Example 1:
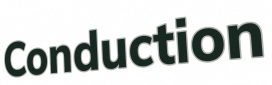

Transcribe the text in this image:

Conduction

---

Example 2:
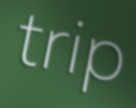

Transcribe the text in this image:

trip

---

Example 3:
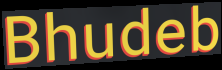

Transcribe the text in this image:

Bhudeb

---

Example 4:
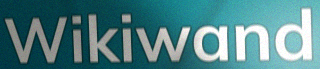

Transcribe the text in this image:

Wikiwand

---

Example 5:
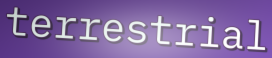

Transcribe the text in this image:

terrestrial